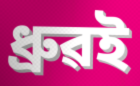
ধ্ৰুৱই